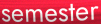
semester